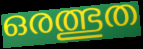
ഒരത്ഭുത